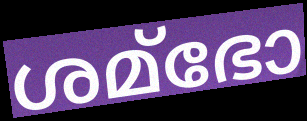
ശമ്ഭോ